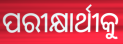
ପରୀକ୍ଷାର୍ଥୀକୁ